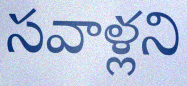
సవాళ్లని